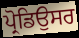
ਪ੍ਰੋਡਿਉਸਰ